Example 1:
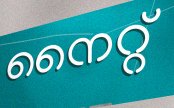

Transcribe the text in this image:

നൈറ്റ്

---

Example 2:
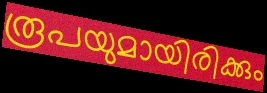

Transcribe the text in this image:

രൂപയുമായിരിക്കും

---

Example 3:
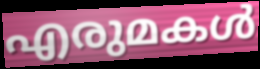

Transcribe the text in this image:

എരുമകൾ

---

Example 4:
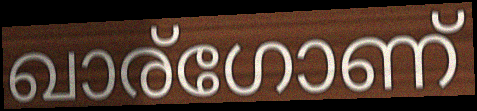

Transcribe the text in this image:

ഖാര്ഗോണ്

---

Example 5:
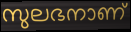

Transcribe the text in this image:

സുലഭനാണ്